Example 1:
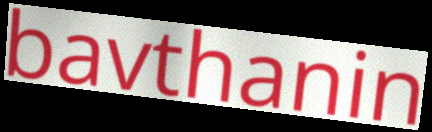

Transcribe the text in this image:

bavthanin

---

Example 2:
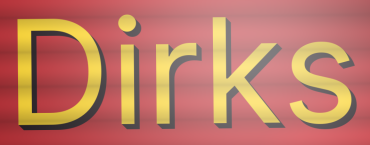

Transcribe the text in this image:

Dirks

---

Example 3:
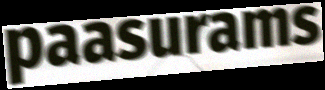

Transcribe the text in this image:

paasurams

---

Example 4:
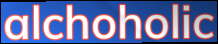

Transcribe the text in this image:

alchoholic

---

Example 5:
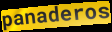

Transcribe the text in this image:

panaderos